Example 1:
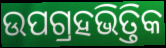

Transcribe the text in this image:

ଉପଗ୍ରହଭିତ୍ତିକ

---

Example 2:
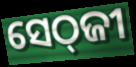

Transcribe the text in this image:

ସେଠ୍‌ଜୀ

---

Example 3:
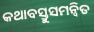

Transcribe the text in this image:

କଥାବସ୍ତୁସମନ୍ୱିତ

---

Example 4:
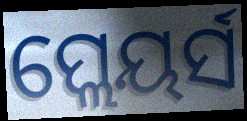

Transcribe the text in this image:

ପ୍ଲେୟର୍ସ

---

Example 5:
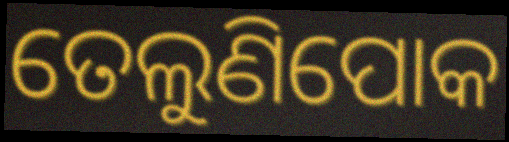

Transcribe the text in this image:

ତେଲୁଣିପୋକ